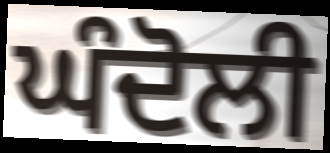
ਘੰਦੋਲੀ